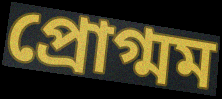
প্রোগ্মম